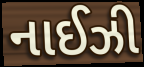
નાઈઝી